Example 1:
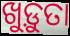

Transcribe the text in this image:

ଖୁଡ଼ୁତା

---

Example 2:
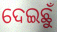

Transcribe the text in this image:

ଦେଇଛୁଁ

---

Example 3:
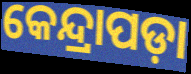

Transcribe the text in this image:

କେନ୍ଦ୍ରାପଡ଼ା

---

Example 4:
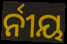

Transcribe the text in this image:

ର୍ନୀୟ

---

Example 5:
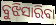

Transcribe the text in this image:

ବୁଝିସାରିବା